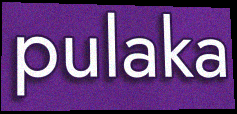
pulaka